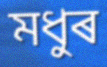
মধুৰ